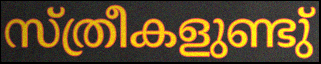
സ്ത്രീകളുണ്ടു്